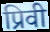
प्रिवी